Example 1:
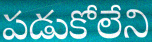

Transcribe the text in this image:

పడుకోలేని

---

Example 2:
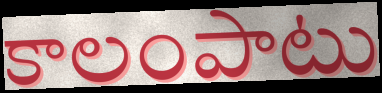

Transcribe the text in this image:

కాలంపాటు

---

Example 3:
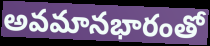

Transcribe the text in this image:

అవమానభారంతో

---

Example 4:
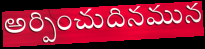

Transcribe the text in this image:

అర్పించుదినమున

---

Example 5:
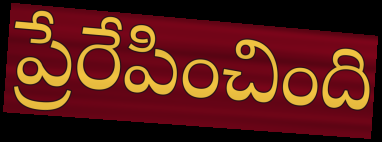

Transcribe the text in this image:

ప్రేరేపించింది